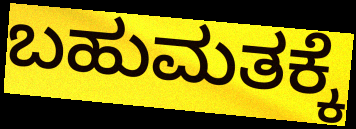
ಬಹುಮತಕ್ಕೆ